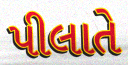
પીલાતે